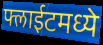
फ्लाईटमध्ये